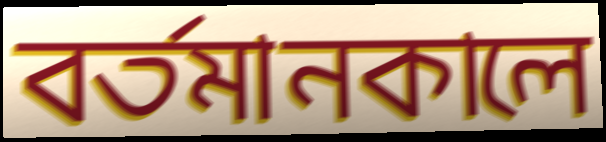
বর্তমানকালে